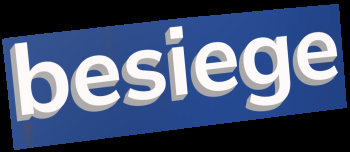
besiege